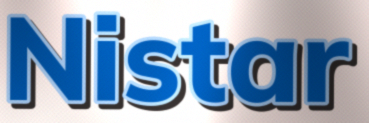
Nistar